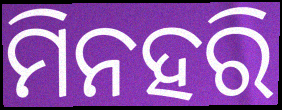
ମିନହରି